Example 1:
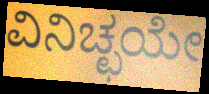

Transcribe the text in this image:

ವಿನಿಚ್ಛಯೇ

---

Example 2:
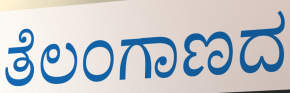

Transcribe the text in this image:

ತೆಲಂಗಾಣದ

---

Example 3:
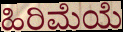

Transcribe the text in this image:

ಹಿರಿಮೆಯೆ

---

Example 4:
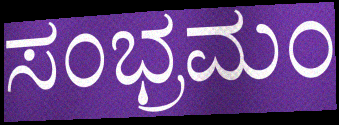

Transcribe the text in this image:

ಸಂಭ್ರಮಂ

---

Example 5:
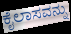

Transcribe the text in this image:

ಕೈಲಾಸವನ್ನು